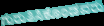
ಗುರುತಿಸಿಕೊಂಡವರು